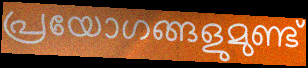
പ്രയോഗങ്ങളുമുണ്ട്